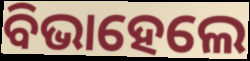
ବିଭାହେଲେ